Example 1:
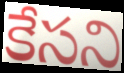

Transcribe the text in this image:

కేసని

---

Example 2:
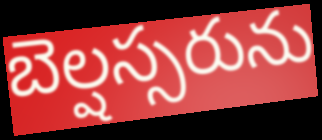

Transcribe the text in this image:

బెల్షస్సరును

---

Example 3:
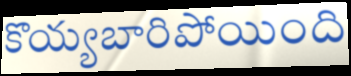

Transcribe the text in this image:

కొయ్యబారిపోయింది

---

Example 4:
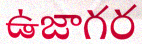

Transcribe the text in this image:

ఉజాగర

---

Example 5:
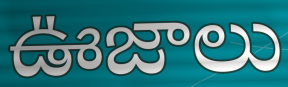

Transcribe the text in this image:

ఊజాలు